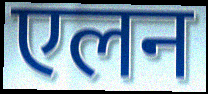
एलन